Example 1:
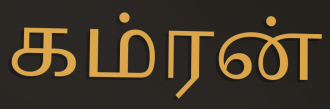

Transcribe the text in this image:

கம்ரன்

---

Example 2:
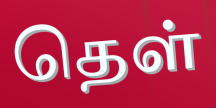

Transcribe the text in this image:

தெள்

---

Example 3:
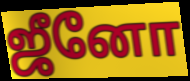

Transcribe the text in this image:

ஜீனோ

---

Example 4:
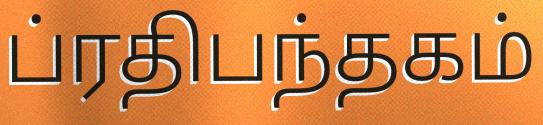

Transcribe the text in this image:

ப்ரதிபந்தகம்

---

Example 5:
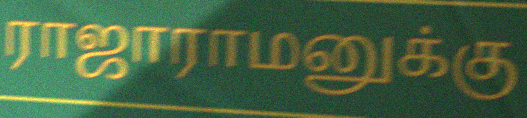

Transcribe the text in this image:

ராஜாராமனுக்கு